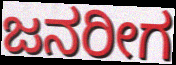
ಜನರೀಗ